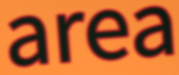
area